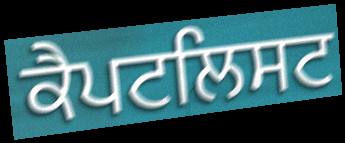
ਕੈਪਟਲਿਸਟ